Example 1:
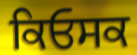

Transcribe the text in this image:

ਕਿਓਸਕ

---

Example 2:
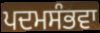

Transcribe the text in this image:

ਪਦਮਸੰਭਵਾ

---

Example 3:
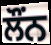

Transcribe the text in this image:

ਲੌਂਨ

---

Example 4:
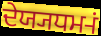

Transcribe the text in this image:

ਦੇਯ੍ਯਧਮ੍ਮਂ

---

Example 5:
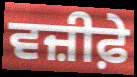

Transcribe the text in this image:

ਵਜ਼ੀਫ਼ੇ